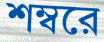
শম্বরে